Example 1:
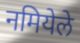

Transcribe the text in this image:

नमियेले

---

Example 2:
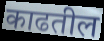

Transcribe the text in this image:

काढतील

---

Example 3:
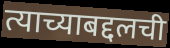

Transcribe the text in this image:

त्याच्याबद्दलची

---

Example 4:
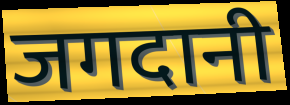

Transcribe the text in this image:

जगदानी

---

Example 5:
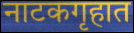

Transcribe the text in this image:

नाटकगृहात